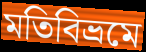
মতিবিভ্রমে